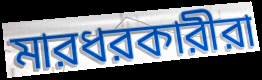
মারধরকারীরা